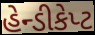
હેન્ડીકેપ્ટ